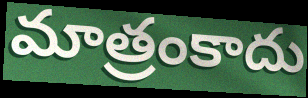
మాత్రంకాదు